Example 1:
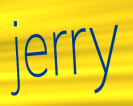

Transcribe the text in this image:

jerry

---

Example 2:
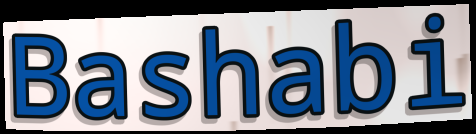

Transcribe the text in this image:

Bashabi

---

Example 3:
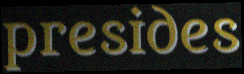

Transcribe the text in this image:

presides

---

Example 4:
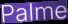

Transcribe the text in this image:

Palme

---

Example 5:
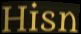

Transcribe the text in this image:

Hisn